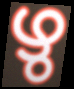
ഴു